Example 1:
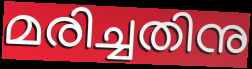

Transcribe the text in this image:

മരിച്ചതിനു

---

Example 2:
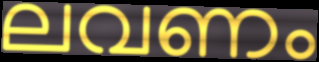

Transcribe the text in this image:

ലവണം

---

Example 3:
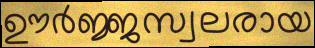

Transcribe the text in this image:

ഊർജ്ജസ്വലരായ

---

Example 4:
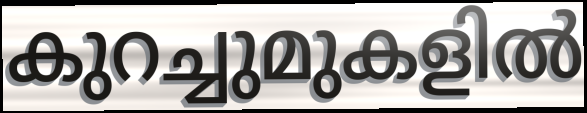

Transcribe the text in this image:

കുറച്ചുമുകളിൽ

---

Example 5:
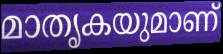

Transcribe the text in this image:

മാതൃകയുമാണ്